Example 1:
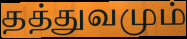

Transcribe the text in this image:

தத்துவமும்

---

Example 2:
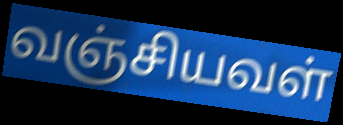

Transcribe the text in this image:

வஞ்சியவள்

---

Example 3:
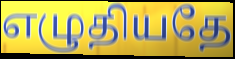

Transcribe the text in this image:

எழுதியதே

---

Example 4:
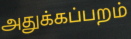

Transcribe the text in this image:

அதுக்கப்பறம்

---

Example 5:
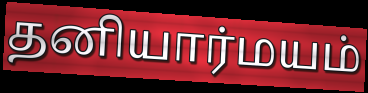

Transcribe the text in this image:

தனியார்மயம்